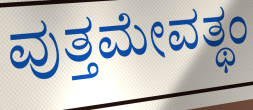
ವುತ್ತಮೇವತ್ಥಂ